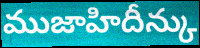
ముజాహిదీన్కు